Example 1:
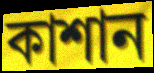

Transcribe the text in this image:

কাশান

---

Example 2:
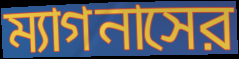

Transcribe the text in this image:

ম্যাগনাসের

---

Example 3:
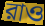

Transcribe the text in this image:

রাও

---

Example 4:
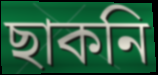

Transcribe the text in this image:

ছাকনি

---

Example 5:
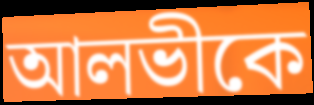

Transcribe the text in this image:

আলভীকে